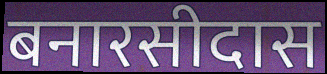
बनारसीदास